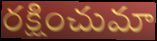
రక్షించుమా